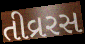
તીવ્રરસ